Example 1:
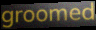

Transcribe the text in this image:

groomed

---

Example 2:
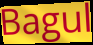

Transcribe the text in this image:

Bagul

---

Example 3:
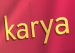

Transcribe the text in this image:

karya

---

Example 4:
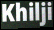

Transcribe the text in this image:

Khilji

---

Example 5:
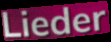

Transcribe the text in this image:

Lieder